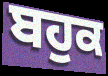
ਬਹੁਕ